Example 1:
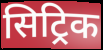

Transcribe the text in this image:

सिट्रिक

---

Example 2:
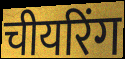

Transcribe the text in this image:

चीयरिंग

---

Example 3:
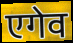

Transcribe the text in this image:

एगेव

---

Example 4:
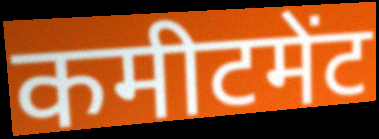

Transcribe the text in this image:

कमीटमेंट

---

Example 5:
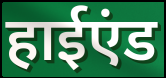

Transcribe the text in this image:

हाईएंड